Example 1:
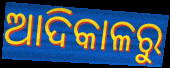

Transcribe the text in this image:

ଆଦିକାଳରୁ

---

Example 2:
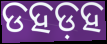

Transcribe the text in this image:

ଡହଡ଼ହ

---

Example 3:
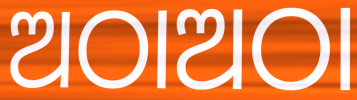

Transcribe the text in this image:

ଅଠାଅଠା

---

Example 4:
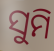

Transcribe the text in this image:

ସୁମି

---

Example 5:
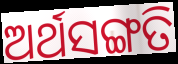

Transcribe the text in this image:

ଅର୍ଥସଙ୍ଗତି